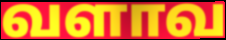
வளாவ